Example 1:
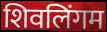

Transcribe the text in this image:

शिवलिंगम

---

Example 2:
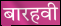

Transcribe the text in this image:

बारहवी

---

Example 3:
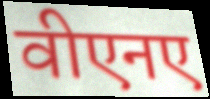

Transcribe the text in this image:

वीएनए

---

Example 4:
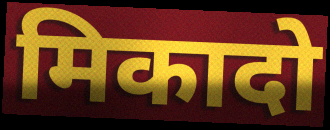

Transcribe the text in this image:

मिकादो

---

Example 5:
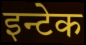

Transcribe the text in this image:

इन्टेक